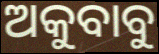
ଅକୁବାବୁ